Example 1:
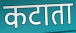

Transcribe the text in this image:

कटाता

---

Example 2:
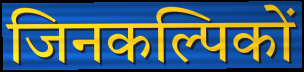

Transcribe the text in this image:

जिनकल्पिकों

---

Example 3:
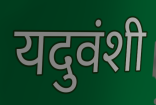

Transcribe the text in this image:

यदुवंशी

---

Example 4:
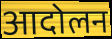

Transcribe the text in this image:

आदोलन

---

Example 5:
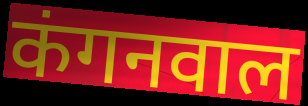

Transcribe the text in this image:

कंगनवाल